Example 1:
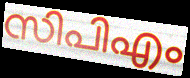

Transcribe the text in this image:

സിപിഎം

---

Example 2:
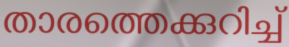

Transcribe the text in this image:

താരത്തെക്കുറിച്ച്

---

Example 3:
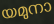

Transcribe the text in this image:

യമുനാ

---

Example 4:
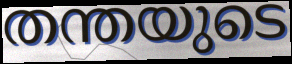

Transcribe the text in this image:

തന്തയുടെ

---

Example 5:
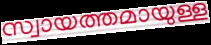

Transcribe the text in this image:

സ്വായത്തമായുള്ള